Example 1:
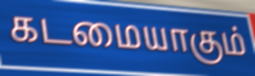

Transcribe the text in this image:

கடமையாகும்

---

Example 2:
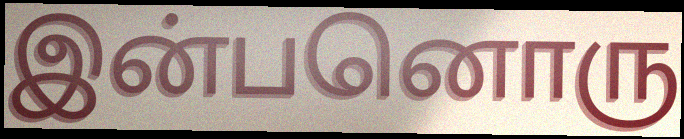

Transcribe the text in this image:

இன்பனொரு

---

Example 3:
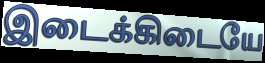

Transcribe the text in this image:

இடைக்கிடையே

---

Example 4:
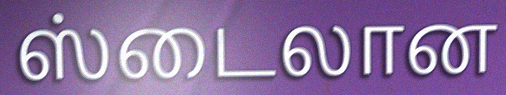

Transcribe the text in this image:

ஸ்டைலான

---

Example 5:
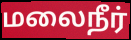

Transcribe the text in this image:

மலைநீர்